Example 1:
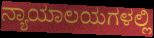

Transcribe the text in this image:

ನ್ಯಾಯಾಲಯಗಳಲ್ಲಿ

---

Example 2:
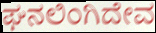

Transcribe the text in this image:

ಘನಲಿಂಗಿದೇವ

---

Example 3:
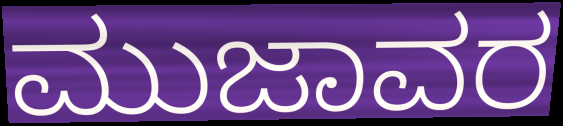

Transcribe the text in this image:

ಮುಜಾವರ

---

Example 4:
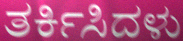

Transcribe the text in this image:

ತರ್ಕಿಸಿದಳು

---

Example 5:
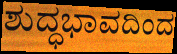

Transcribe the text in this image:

ಶುದ್ಧಭಾವದಿಂದ